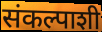
संकल्पाशी